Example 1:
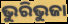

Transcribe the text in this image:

ଭୁରିଭୁଜା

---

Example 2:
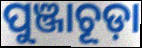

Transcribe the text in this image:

ପୁଞ୍ଜାଚୂଡ଼ା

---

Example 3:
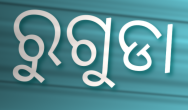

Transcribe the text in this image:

ରୁଗୁଡା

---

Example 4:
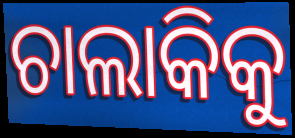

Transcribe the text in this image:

ଚାଲାକିକୁ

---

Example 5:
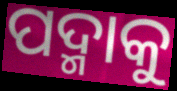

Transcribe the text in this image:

ପଦ୍ମାକୁ